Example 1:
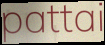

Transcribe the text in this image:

pattai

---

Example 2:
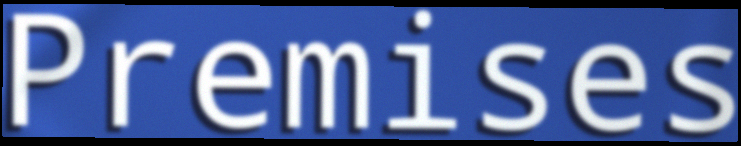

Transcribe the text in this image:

Premises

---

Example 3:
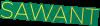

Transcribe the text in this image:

SAWANT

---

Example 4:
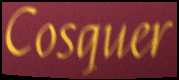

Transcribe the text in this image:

Cosquer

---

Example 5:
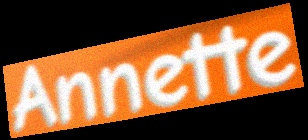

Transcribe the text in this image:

Annette